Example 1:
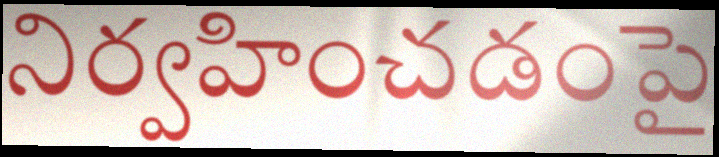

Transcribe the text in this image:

నిర్వహించడంపై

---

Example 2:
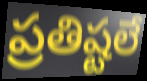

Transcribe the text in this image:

ప్రతిష్టలే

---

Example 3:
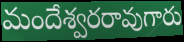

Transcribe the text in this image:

మందేశ్వరరావుగారు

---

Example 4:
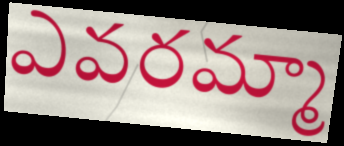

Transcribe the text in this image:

ఎవరమ్మా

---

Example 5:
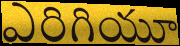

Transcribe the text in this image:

ఎరిగియూ